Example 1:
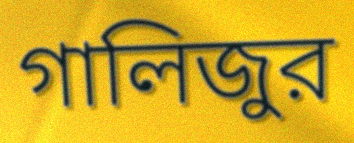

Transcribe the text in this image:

গালিজুর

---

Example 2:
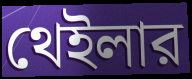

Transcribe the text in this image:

থেইলার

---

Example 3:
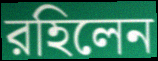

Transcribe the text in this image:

রহিলেন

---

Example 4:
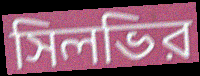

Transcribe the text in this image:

সিলভির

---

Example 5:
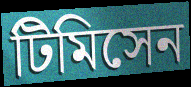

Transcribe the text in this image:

টিমিসেন